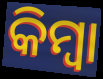
କିମ୍ଵା